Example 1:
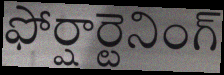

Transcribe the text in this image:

ఫోర్షార్టెనింగ్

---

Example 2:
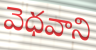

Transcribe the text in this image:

వెధవాని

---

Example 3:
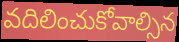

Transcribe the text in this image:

వదిలించుకోవాల్సిన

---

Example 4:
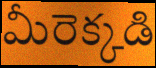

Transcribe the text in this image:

మీరెక్కడి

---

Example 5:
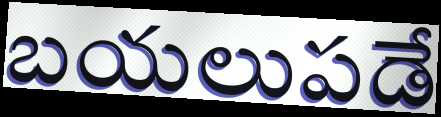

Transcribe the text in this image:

బయలుపడే